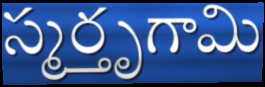
స్మర్తృగామి